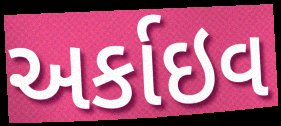
અર્કાઇવ